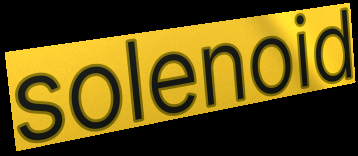
solenoid